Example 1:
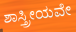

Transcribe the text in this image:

ಶಾಸ್ತ್ರೀಯವೇ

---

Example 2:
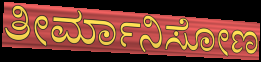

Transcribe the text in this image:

ತೀರ್ಮಾನಿಸೋಣ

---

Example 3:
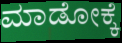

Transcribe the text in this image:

ಮಾಡೋಕ್ಕೆ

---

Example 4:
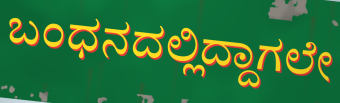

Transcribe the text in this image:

ಬಂಧನದಲ್ಲಿದ್ದಾಗಲೇ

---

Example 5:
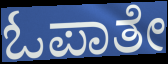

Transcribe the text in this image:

ಓಪಾತೇ